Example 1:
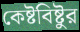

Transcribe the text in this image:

কেষ্টবিষ্টুর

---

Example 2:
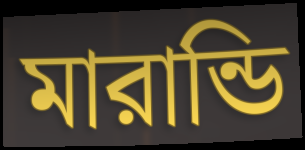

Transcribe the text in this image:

মারান্ডি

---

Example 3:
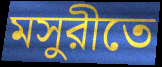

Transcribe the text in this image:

মসুরীতে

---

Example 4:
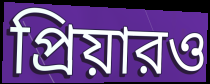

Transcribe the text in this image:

প্রিয়ারও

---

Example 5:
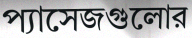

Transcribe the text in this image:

প্যাসেজগুলোর